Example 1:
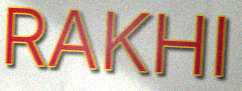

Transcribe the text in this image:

RAKHI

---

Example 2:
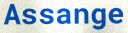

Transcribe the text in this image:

Assange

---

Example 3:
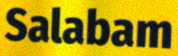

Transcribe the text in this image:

Salabam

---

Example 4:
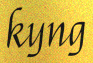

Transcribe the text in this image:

kyng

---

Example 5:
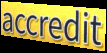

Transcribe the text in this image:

accredit